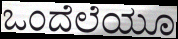
ಒಂದೆಲೆಯೂ